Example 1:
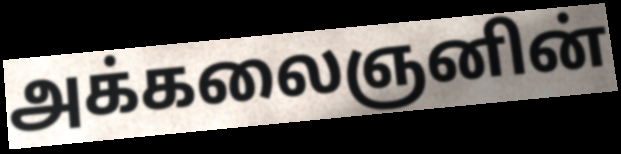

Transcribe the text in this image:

அக்கலைஞனின்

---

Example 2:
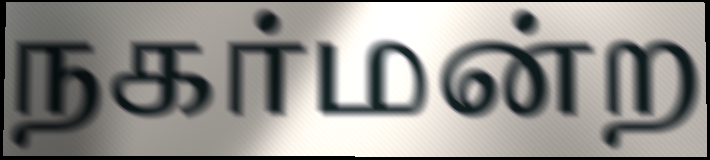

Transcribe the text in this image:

நகர்மன்ற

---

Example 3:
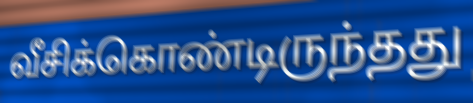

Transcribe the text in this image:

வீசிக்கொண்டிருந்தது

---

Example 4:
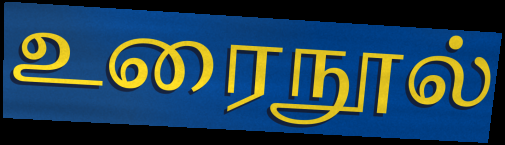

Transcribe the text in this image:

உரைநூல்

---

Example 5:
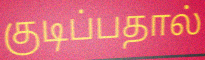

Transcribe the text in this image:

குடிப்பதால்